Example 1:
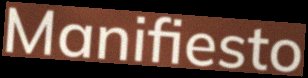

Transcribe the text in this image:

Manifiesto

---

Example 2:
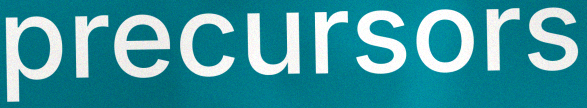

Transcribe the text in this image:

precursors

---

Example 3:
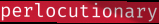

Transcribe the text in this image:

perlocutionary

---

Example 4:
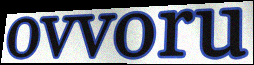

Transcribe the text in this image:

ovvoru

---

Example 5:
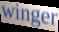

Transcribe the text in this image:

winger